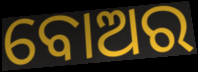
ବୋଅର